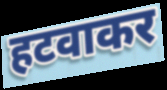
हटवाकर